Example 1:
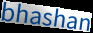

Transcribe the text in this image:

bhashan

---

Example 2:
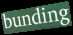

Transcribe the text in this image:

bunding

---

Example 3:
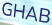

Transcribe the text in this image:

GHAB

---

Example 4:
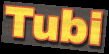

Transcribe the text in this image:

Tubi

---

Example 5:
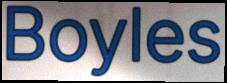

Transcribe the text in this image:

Boyles